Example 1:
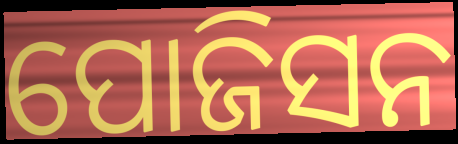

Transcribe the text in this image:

ପୋଜିସନ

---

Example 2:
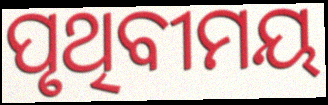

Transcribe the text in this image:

ପୃଥିବୀମୟ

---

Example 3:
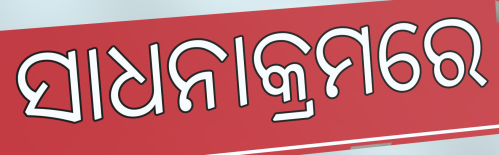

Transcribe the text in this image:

ସାଧନାକ୍ରମରେ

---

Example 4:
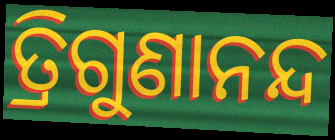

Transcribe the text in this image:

ତ୍ରିଗୁଣାନନ୍ଦ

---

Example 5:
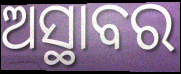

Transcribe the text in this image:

ଅସ୍ଥାବର